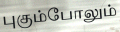
புகும்போலும்